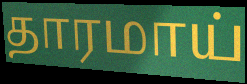
தாரமாய்